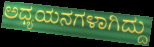
ಅಧ್ಯಯನಗಳಾಗಿದ್ದು